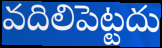
వదిలిపెట్టదు